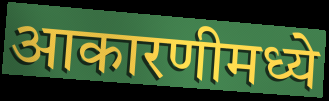
आकारणीमध्ये